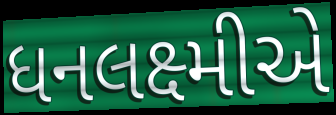
ધનલક્ષ્મીએ